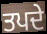
ਤਪਦੇ